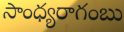
సాంధ్యరాగంబు